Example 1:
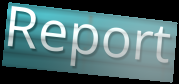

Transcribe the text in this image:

Report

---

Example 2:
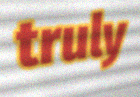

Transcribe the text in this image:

truly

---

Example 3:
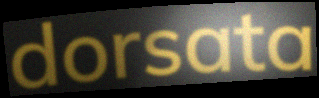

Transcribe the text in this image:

dorsata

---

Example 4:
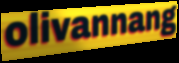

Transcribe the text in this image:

olivannang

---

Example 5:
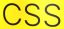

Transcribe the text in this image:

CSS